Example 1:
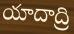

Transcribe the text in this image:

యాదాద్రి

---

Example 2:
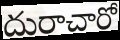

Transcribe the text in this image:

దురాచారో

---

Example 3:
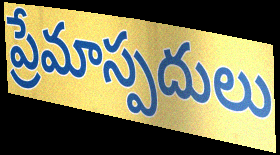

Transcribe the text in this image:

ప్రేమాస్పదులు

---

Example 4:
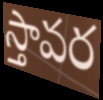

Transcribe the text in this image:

స్తావర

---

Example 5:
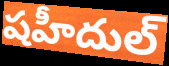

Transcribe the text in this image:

షహీదుల్